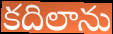
కదిలాను